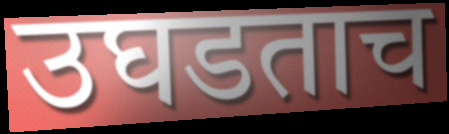
उघडताच